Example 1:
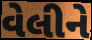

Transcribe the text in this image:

વેલીને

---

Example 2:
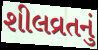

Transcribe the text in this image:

શીલવ્રતનું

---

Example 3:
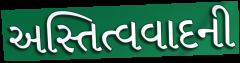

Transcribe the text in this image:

અસ્તિત્વવાદની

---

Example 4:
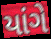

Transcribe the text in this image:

યાંગે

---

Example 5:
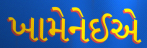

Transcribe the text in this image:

ખામેનેઈએ